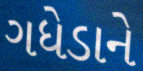
ગધેડાને